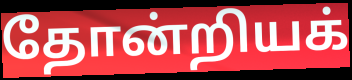
தோன்றியக்